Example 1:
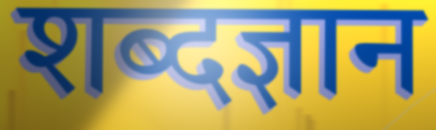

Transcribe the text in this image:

शब्दज्ञान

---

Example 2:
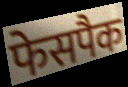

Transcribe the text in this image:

फेसपैक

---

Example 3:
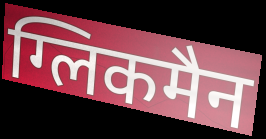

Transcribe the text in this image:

ग्लिकमैन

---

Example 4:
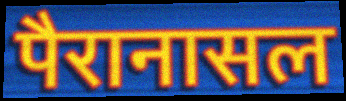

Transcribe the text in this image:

पैरानासल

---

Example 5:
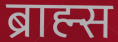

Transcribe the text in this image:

ब्राह्म्स